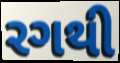
રગથી